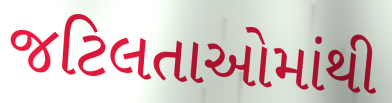
જટિલતાઓમાંથી